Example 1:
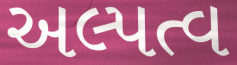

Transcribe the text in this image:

અલ્પત્વ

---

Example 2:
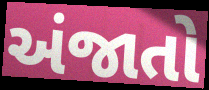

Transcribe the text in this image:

અંજાતો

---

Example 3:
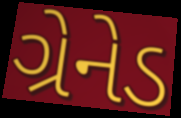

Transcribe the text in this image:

ગ્રેનેડ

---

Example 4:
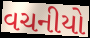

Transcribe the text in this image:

વચનીયો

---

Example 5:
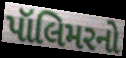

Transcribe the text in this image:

પૉલિમરનો